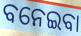
ବନେଇବା